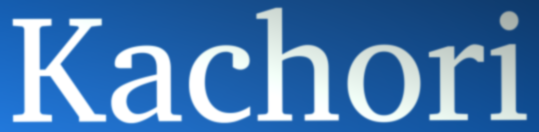
Kachori